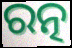
ରତ୍ନ